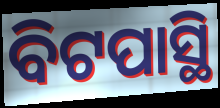
ବିଟପାସ୍ଥି